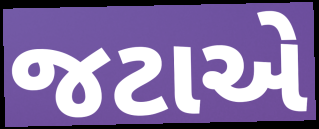
જટાએ